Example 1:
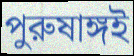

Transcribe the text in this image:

পুরুষাঙ্গই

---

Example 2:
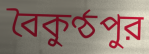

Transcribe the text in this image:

বৈকুণ্ঠপুর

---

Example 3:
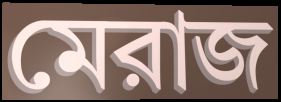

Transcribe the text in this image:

মেরাজ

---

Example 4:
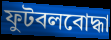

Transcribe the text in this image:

ফুটবলবোদ্ধা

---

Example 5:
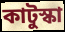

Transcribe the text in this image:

কাটুস্কা